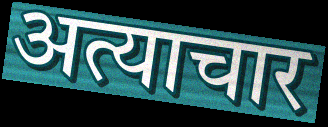
अत्याचार